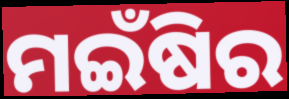
ମଇଁଷିର